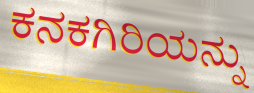
ಕನಕಗಿರಿಯನ್ನು